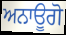
ਅਨਾਊਗੋ